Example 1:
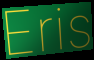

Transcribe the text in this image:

Eris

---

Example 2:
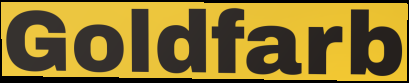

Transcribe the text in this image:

Goldfarb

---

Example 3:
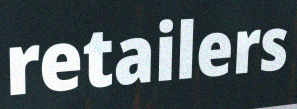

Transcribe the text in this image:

retailers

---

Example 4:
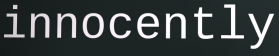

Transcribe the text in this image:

innocently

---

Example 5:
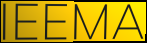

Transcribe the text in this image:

IEEMA